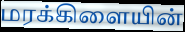
மரக்கிளையின்